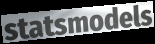
statsmodels